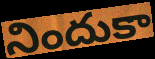
నిందుకా